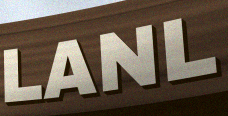
LANL